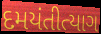
દમયંતીત્યાગ